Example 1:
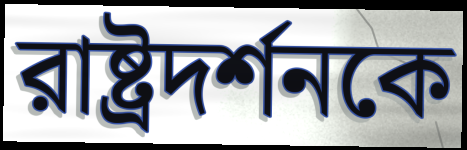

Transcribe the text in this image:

রাষ্ট্রদর্শনকে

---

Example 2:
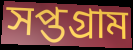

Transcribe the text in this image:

সপ্তগ্রাম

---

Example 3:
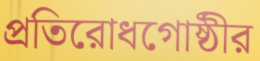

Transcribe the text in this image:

প্রতিরোধগোষ্ঠীর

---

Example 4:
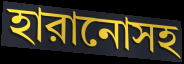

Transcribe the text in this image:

হারানোসহ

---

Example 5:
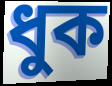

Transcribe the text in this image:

ধুক